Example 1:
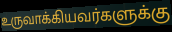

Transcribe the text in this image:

உருவாக்கியவர்களுக்கு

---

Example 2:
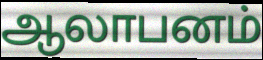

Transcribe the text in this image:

ஆலாபனம்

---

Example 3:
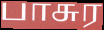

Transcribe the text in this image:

பாசுர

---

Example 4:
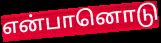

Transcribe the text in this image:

என்பானொடு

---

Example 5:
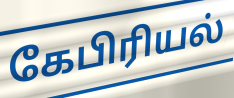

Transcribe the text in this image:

கேபிரியல்